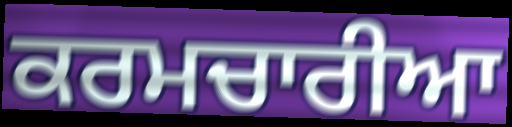
ਕਰਮਚਾਰੀਆ